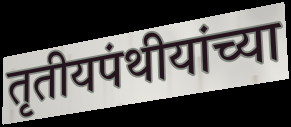
तृतीयपंथीयांच्या